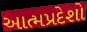
આત્મપ્રદેશો